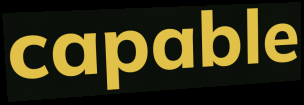
capable